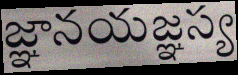
జ్ఞానయజ్ఞస్య